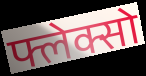
फ्लेक्सो